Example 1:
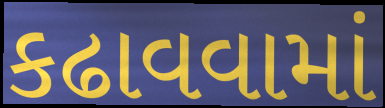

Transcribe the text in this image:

કઢાવવામાં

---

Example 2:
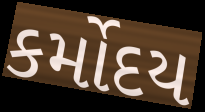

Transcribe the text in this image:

કર્મોદય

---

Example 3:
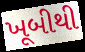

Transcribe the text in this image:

ખૂબીથી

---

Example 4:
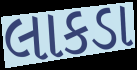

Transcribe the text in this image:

લાકડા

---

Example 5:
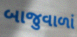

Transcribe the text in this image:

બાજુવાળાં